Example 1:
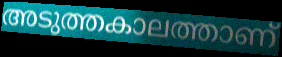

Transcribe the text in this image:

അടുത്തകാലത്താണ്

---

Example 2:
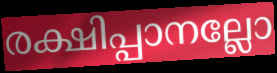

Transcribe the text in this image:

രക്ഷിപ്പാനല്ലോ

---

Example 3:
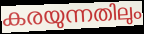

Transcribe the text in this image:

കരയുന്നതിലും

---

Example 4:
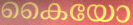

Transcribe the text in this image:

കൈയോ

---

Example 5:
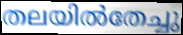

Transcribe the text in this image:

തലയിൽതേച്ചു